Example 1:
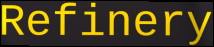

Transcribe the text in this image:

Refinery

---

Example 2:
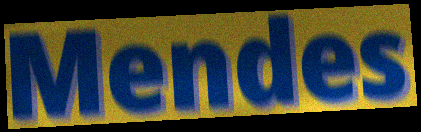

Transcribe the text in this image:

Mendes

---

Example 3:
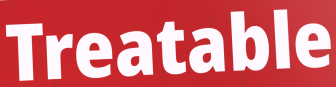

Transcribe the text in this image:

Treatable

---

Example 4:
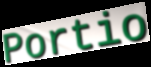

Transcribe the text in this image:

Portio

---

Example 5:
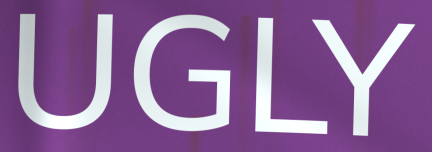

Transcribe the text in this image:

UGLY